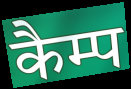
कैम्प